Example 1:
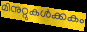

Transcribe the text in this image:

മിനുറ്റുകൾക്കകം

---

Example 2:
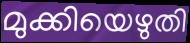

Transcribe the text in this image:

മുക്കിയെഴുതി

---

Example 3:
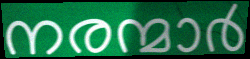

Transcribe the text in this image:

നരന്മാർ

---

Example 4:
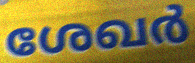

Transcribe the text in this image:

ശേഖർ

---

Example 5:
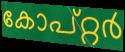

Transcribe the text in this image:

കോപ്റ്റർ